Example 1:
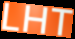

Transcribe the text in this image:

LHT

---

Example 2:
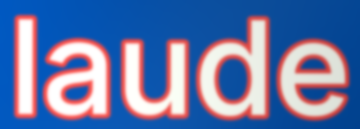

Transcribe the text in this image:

laude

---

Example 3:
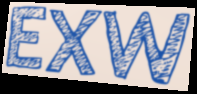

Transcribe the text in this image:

EXW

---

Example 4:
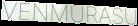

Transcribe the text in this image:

VENMURASU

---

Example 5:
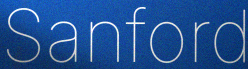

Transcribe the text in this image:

Sanford